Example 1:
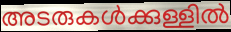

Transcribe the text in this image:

അടരുകൾക്കുള്ളിൽ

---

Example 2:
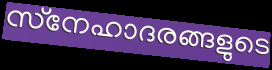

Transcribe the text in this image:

സ്‌നേഹാദരങ്ങളുടെ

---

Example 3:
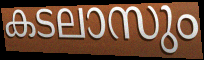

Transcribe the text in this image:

കടലാസും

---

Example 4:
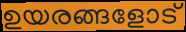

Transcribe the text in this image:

ഉയരങ്ങളോട്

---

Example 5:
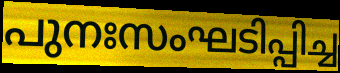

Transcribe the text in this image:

പുനഃസംഘടിപ്പിച്ച